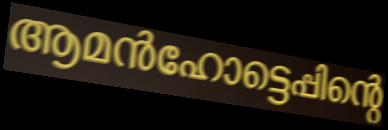
ആമൻഹോട്ടെപ്പിന്റെ